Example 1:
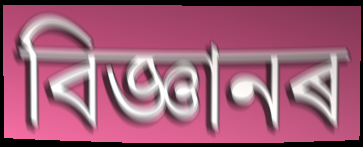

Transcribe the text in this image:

বিজ্ঞানৰ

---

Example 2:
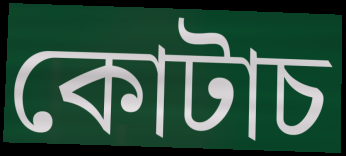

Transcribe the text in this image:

কোটাচ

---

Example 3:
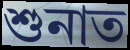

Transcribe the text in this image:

শুনাত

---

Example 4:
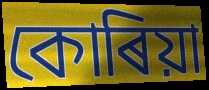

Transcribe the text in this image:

কোৰিয়া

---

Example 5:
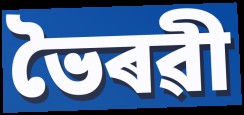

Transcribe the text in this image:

ভৈৰৱী